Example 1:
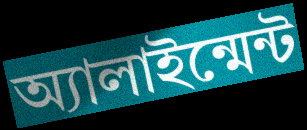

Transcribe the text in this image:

অ্যালাইন্মেন্ট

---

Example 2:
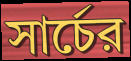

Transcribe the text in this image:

সার্চের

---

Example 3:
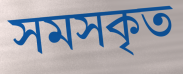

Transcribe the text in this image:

সমসকৃত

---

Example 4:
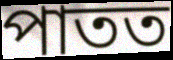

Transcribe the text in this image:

পাতত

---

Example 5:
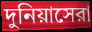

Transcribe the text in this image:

দুনিয়াসেরা